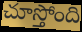
చూస్తోంది